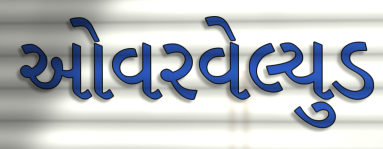
ઓવરવેલ્યુડ